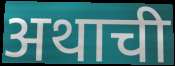
अथाची